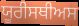
ਯੂਰੀਸਥੀਅਸ